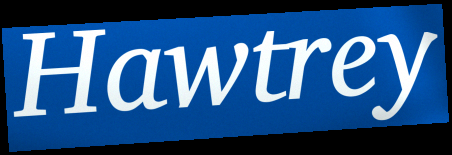
Hawtrey